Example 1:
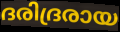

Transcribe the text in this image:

ദരിദ്രരായ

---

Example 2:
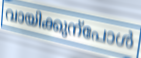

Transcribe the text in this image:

വായിക്കുന്പോൾ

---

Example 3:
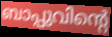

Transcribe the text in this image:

ബാപ്പുവിന്റെ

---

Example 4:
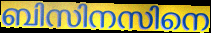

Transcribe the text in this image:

ബിസിനസിനെ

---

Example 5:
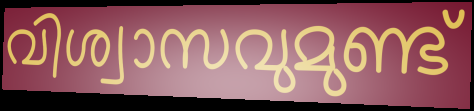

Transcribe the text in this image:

വിശ്വാസവുമുണ്ട്